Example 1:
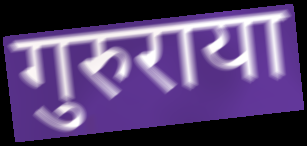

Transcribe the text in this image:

गुरुराया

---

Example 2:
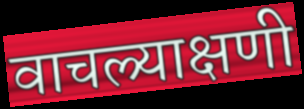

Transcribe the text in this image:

वाचल्याक्षणी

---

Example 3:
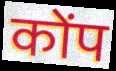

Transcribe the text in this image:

कोंप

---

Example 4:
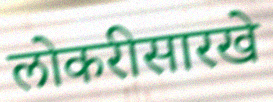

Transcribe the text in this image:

लोकरीसारखे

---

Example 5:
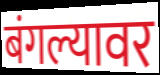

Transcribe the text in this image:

बंगल्यावर